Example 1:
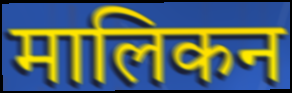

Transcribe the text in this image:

मालिकन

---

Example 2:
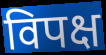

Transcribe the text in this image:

विपक्ष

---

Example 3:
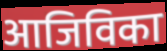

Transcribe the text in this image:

आजिविका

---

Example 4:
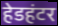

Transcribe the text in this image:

हेडहंटर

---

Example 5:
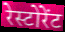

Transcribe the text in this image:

रेस्टोरेंट